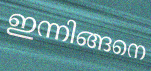
ഇന്നിങ്ങനെ